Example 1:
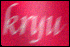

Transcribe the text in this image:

kryu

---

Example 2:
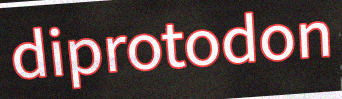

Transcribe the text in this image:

diprotodon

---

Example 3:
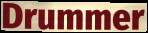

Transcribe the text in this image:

Drummer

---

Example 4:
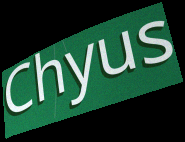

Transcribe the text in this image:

Chyus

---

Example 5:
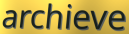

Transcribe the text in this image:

archieve